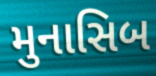
મુનાસિબ